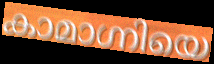
കാമാഗ്നിയെ